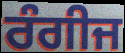
ਰੰਗੀਜ